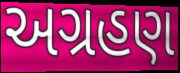
અગ્રહણ